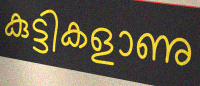
കുട്ടികളാണു